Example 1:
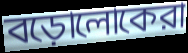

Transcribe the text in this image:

বড়োলোকেরা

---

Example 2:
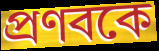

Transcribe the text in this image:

প্রণবকে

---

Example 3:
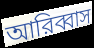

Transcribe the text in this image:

আরিব্বাস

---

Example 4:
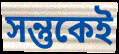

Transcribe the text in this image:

সন্তুকেই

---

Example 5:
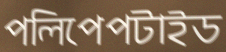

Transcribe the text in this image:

পলিপেপটাইড